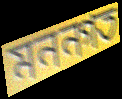
মননগত